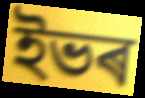
ইভৰ